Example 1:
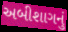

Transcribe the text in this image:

અબીશાગનું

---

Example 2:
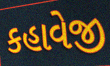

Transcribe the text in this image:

કહાવેજી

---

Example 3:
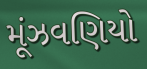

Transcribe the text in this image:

મૂંઝવણિયો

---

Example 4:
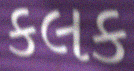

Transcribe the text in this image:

કલક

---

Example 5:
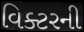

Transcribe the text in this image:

વિક્ટરની